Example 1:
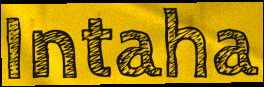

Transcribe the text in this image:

Intaha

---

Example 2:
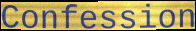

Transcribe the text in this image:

Confession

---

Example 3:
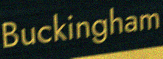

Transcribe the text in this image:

Buckingham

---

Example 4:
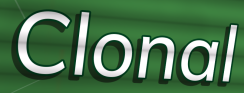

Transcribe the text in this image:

Clonal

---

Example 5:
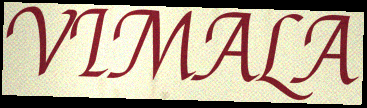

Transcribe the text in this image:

VIMALA